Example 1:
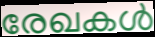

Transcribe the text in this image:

രേഖകൾ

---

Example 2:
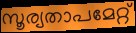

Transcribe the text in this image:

സൂര്യതാപമേറ്റ്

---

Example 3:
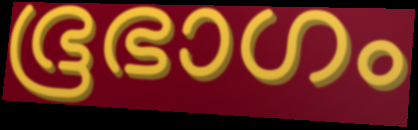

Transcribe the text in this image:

ഭൂഭാഗം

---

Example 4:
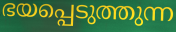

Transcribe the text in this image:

ഭയപ്പെടുത്തുന്ന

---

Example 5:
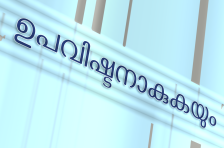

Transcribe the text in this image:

ഉപവിഷ്ടനാകുകയും